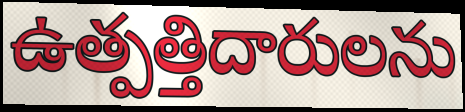
ఉత్పత్తిదారులను